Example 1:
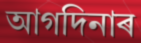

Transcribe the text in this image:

আগদিনাৰ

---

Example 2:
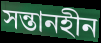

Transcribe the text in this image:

সন্তানহীন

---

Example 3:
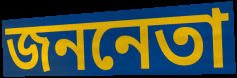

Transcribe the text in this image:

জননেতা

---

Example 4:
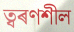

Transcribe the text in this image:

ত্বৰণশীল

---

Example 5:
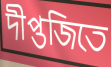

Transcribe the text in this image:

দীপ্তজিতে